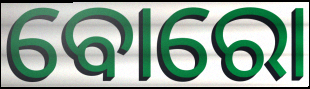
ବୋରୋ